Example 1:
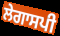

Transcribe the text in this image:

ਲੇਗਾਸਪੀ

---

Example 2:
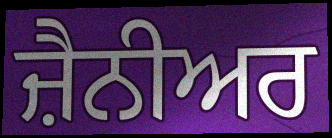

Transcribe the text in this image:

ਜ਼ੈਨੀਅਰ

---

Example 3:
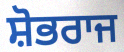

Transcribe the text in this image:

ਸ਼ੋਭਰਾਜ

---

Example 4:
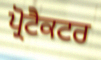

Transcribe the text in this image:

ਪ੍ਰੋਟੈਕਟਰ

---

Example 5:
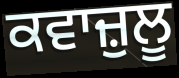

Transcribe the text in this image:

ਕਵਾਜ਼ੁਲੂ